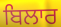
ਬਿਲਾਰ